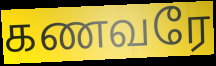
கணவரே